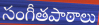
సంగీతపాఠాలు